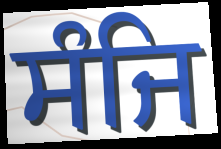
ਸੰਜਿ